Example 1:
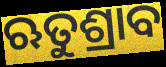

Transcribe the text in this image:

ଋତୁଶ୍ରାବ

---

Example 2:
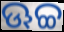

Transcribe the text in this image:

ଊଚ୍ଚ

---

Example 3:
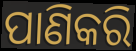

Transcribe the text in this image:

ପାଣିକରି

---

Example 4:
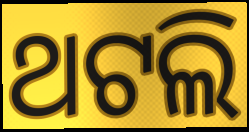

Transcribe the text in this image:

ଥଟଲି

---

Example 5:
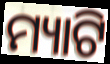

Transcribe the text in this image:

ମ୍ୟାଟି